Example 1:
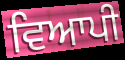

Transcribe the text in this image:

ਵਿਆਪੀ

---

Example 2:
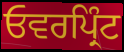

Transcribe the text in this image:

ਓਵਰਪ੍ਰਿੰਟ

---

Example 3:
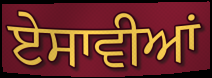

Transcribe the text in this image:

ਏਸਾਵੀਆਂ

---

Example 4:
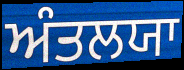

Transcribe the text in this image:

ਅੰਤਲਯਾ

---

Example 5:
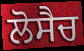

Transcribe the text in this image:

ਲੋਸੈਚ